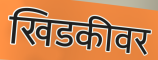
खिडकीवर